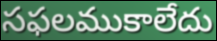
సఫలముకాలేదు